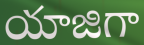
యాజిగా